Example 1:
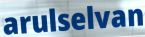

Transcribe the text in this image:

arulselvan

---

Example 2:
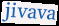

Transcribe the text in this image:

jivava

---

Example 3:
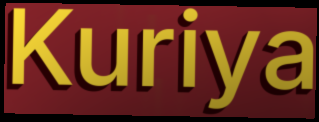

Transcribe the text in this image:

Kuriya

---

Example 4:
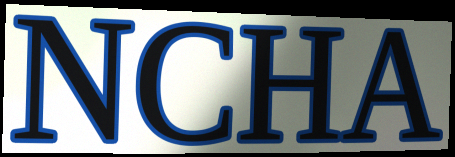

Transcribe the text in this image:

NCHA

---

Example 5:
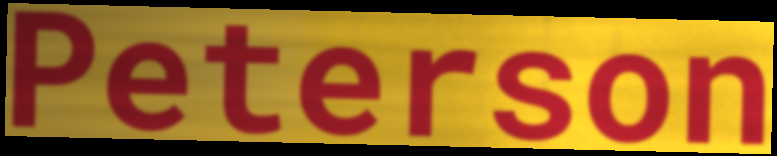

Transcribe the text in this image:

Peterson